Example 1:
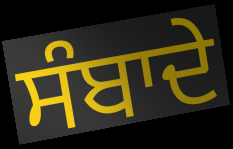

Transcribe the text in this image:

ਸੰਬਾਦੇ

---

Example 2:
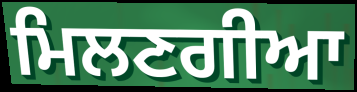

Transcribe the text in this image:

ਮਿਲਣਗੀਆ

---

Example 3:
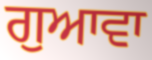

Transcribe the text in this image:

ਗੁਆਵਾ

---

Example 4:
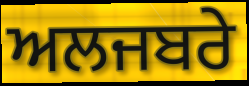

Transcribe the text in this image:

ਅਲਜਬਰੇ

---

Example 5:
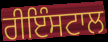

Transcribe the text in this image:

ਰੀਇੰਸਟਾਲ